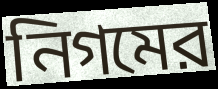
নিগমের